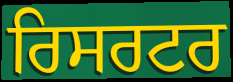
ਰਿਸਰਟਰ